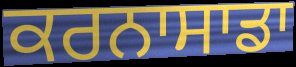
ਕਰਨਾਸਾਡਾ